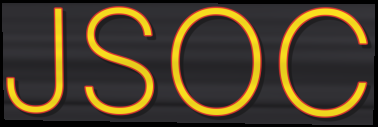
JSOC